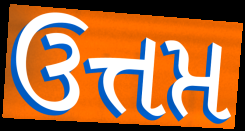
ઉત્તપ્ત